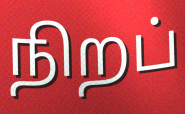
நிறப்